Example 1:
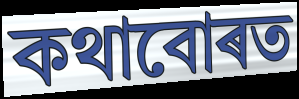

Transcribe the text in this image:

কথাবোৰত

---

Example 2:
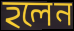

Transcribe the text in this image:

হলেন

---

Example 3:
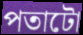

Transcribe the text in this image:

পতাটো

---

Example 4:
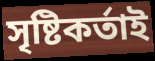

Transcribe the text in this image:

সৃষ্টিকৰ্তাই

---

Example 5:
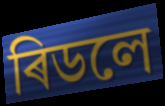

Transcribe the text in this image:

ৰিডলে